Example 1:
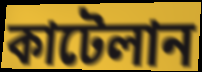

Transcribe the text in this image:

কাটেলান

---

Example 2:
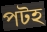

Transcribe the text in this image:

পটহ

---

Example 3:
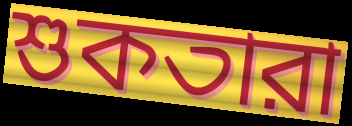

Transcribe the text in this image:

শুকতারা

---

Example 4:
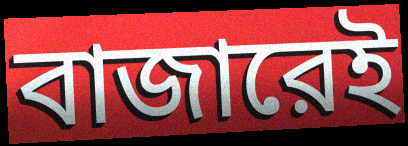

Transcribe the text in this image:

বাজারেই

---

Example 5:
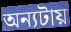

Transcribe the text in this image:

অন্যটায়